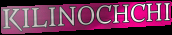
KILINOCHCHI